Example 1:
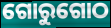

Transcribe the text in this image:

ଗୋରୁଗୋଠ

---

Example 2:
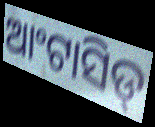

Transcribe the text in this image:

ଆଂଟାସିଡ୍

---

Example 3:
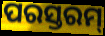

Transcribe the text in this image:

ପରସ୍ତରମ୍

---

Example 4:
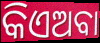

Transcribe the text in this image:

କିଏଅବା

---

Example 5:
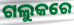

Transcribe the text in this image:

ଗଲୁକରେ